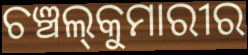
ଚଞ୍ଚଲ୍‍କୁମାରୀର